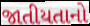
જાતીયતાનો